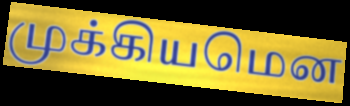
முக்கியமென